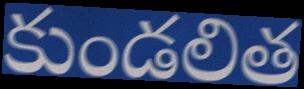
కుండలిత